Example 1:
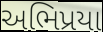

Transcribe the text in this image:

અભિપ્રયા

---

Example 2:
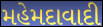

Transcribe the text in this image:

મહેમદાવાદી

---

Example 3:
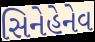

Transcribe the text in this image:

સિનેહેનેવ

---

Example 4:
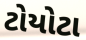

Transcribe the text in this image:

ટોયોટા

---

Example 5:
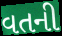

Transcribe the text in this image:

વતની